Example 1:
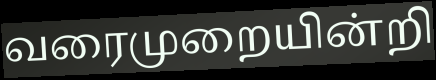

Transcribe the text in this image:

வரைமுறையின்றி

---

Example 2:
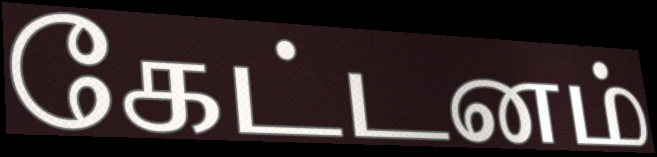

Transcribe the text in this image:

கேட்டனம்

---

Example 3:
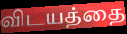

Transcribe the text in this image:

விடயத்தை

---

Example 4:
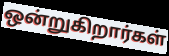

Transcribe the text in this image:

ஒன்றுகிறார்கள்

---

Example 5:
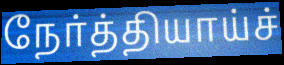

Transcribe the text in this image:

நேர்த்தியாய்ச்